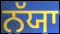
ਨੱਯਾ